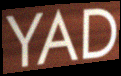
YAD